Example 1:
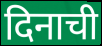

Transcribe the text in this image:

दिनाची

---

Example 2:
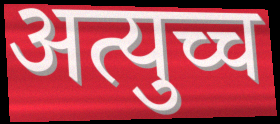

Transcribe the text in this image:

अत्युच्च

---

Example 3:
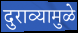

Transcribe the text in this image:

दुराव्यामुळे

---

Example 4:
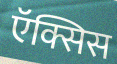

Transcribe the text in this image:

ऍक्सिस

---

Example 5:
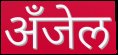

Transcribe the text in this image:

अँजेल